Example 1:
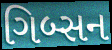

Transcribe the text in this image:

ગિબ્સન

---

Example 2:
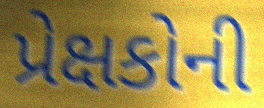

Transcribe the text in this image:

પ્રેક્ષકોની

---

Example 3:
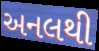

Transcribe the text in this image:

અનલથી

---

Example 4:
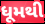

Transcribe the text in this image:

ધૂમથી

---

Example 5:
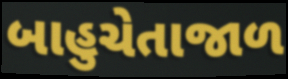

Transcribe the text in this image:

બાહુચેતાજાળ